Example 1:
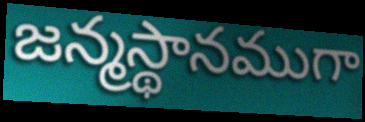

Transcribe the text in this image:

జన్మస్థానముగా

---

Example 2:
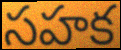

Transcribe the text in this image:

సహక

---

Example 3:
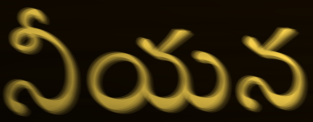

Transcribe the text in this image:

నీయన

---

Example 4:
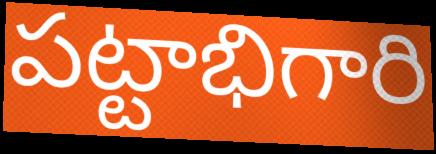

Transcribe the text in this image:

పట్టాభిగారి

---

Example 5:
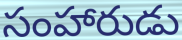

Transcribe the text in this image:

సంహారుడు